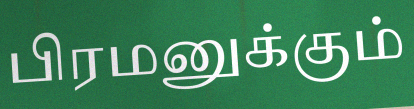
பிரமனுக்கும்